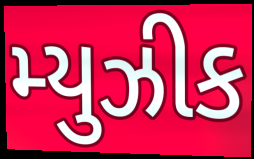
મ્યુઝીક